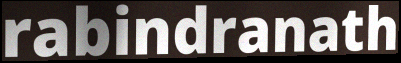
rabindranath